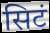
सिटं